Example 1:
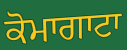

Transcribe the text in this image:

ਕੋਮਾਗਾਟਾ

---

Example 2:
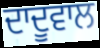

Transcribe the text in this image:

ਦਾਦੂਵਾਲ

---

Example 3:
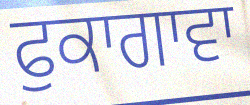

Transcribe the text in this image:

ਫੁਕਾਗਾਵਾ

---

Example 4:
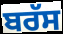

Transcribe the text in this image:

ਬਰੱਸ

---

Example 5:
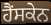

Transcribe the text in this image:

ਹੈਂਸਕੇਨ